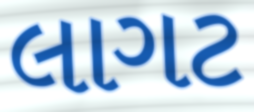
લાગટ